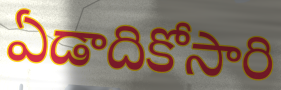
ఏడాదికోసారి